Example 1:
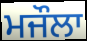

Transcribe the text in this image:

ਮਜੌਲਾ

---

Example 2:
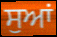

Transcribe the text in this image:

ਸੁਆਂ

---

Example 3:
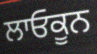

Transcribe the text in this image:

ਲਾਓਕੂਨ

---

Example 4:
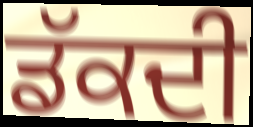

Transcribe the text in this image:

ਡੱਕਦੀ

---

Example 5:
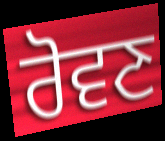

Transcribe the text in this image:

ਰੋਵਣ